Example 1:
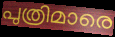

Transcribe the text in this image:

പുത്രിമാരെ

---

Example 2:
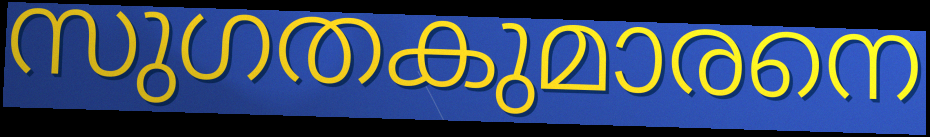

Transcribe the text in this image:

സുഗതകുമാരനെ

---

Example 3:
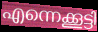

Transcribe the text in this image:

എന്നെക്കൂട്ടി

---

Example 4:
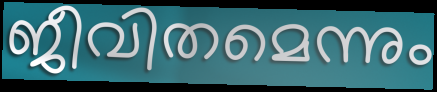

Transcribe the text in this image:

ജീവിതമെന്നും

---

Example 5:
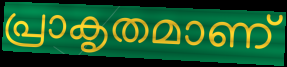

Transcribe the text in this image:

പ്രാകൃതമാണ്